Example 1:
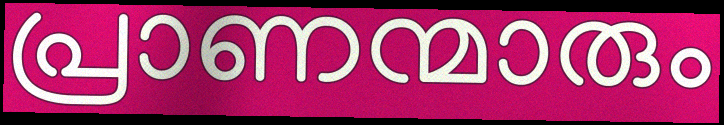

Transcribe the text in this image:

പ്രാണന്മാരും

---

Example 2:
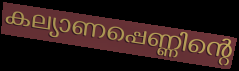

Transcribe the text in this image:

കല്യാണപ്പെണ്ണിന്റെ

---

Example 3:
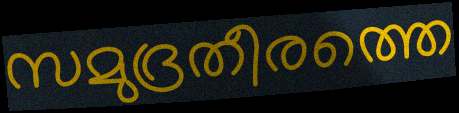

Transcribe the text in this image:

സമുദ്രതീരത്തെ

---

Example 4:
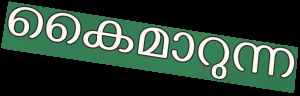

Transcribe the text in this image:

കൈമാറുന്ന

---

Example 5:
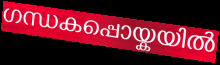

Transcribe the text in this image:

ഗന്ധകപ്പൊയ്കയിൽ